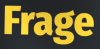
Frage